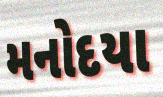
મનોદયા